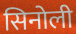
सिनोली